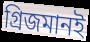
গ্রিজমানই